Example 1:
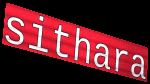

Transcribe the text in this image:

sithara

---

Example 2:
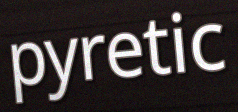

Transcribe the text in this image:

pyretic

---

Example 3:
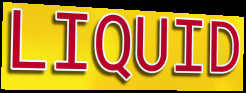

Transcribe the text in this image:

LIQUID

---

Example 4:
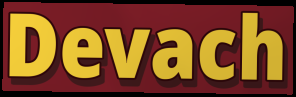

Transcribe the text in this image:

Devach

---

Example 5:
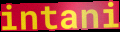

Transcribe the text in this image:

intani